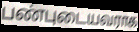
பண்புடையவராக